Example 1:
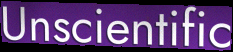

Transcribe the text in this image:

Unscientific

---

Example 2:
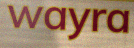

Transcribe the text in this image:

wayra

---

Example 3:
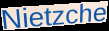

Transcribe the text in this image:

Nietzche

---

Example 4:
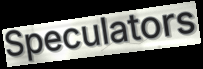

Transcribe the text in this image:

Speculators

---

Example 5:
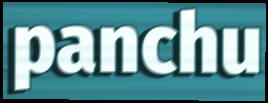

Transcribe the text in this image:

panchu